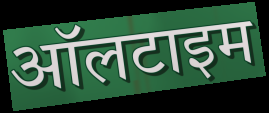
ऑलटाइम